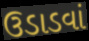
ઉડાડવાં